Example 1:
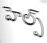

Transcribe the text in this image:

హెల్ప్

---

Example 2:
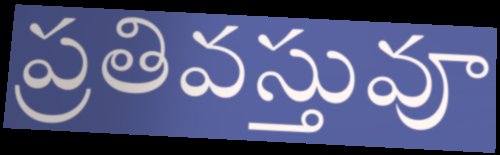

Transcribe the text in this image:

ప్రతివస్తువూ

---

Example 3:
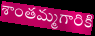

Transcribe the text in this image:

శాంతమ్మగారికి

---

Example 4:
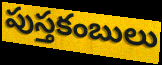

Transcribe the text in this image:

పుస్తకంబులు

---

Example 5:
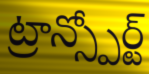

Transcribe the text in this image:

ట్రాన్స్పోర్ట్